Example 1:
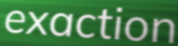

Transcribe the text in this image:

exaction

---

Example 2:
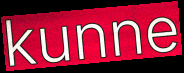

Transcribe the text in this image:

kunne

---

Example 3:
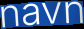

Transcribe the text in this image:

navn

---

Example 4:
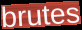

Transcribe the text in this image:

brutes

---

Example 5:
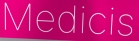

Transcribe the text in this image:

Medicis